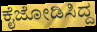
ಕೈಜೋಡಿಸಿದ್ದ